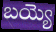
బయ్యె